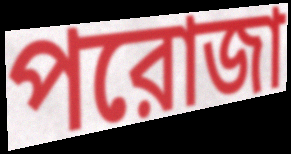
পরোজা